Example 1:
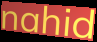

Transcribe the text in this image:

nahid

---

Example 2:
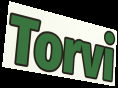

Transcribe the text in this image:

Torvi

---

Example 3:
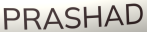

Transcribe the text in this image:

PRASHAD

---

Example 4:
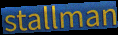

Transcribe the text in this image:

stallman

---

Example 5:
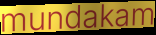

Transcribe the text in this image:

mundakam